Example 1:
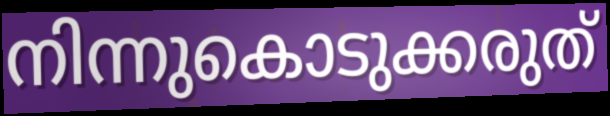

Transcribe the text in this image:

നിന്നുകൊടുക്കരുത്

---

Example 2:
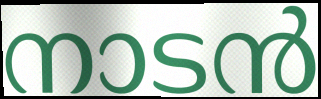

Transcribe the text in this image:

നാടൻ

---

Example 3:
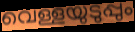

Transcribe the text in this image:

വെള്ളയുടുപ്പും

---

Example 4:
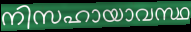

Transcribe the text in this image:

നിസഹായാവസ്ഥ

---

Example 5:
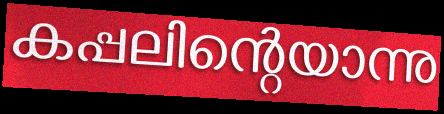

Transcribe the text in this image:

കപ്പലിന്റെയാന്നു